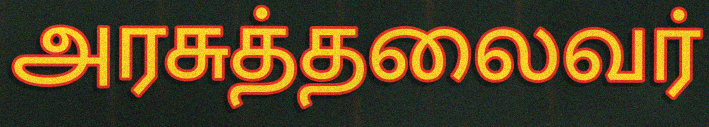
அரசுத்தலைவர்